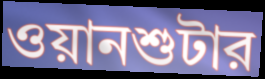
ওয়ানশুটার